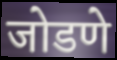
जोडणे